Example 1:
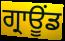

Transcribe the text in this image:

ਗ੍ਰਾਊਂਡ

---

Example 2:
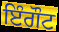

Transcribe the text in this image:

ਇੰਗੌਟ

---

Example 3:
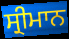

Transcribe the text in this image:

ਸ੍ਰੀਮਾਨ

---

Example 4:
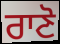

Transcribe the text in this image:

ਰਾਣੋ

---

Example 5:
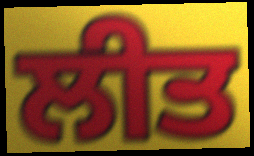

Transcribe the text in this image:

ਲੀਤ